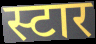
स्‍टार